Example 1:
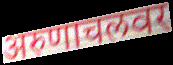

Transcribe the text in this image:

अरुणाचलवर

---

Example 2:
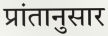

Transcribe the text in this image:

प्रांतानुसार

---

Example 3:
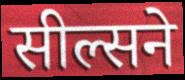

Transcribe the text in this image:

सील्सने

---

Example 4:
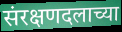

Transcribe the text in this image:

संरक्षणदलाच्या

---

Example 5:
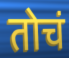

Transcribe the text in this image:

तोचं